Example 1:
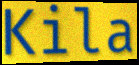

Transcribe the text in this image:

Kila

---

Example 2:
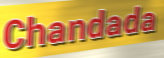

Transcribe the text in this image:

Chandada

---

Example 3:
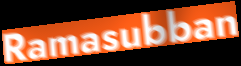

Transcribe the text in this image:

Ramasubban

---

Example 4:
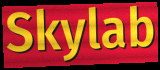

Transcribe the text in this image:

Skylab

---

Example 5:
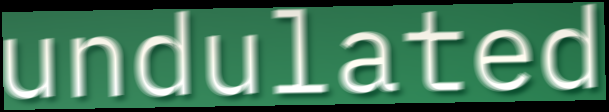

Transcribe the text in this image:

undulated